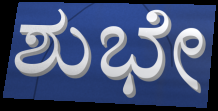
ಶುಭೇ